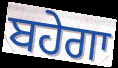
ਬਹੇਗਾ